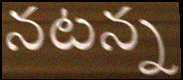
నటన్న